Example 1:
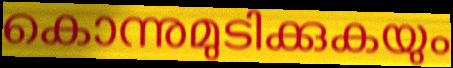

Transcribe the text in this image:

കൊന്നുമുടിക്കുകയും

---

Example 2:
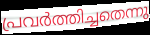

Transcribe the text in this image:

പ്രവർത്തിച്ചതെന്നു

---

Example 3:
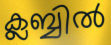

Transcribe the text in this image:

ക്ലബ്ബിൽ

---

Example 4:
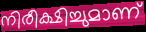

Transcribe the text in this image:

നിരീക്ഷിച്ചുമാണ്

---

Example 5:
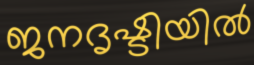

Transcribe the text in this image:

ജനദൃഷ്ടിയിൽ